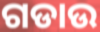
ଗଡାଉ